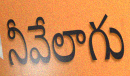
నీవేలాగు